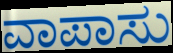
ವಾಪಾಸು